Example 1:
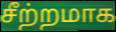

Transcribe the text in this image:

சீற்றமாக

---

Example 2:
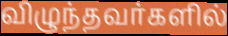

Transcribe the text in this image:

விழுந்தவர்களில்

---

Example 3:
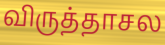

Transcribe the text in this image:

விருத்தாசல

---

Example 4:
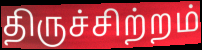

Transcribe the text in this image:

திருச்சிற்றம்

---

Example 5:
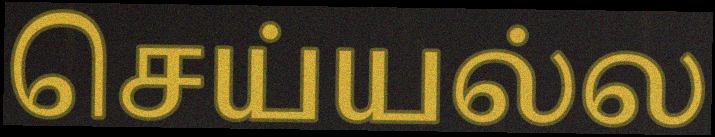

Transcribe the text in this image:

செய்யல்ல